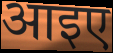
आइए